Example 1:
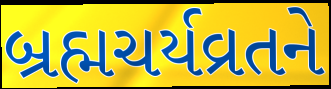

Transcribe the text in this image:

બ્રહ્મચર્યવ્રતને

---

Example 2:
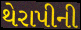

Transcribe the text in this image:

થેરાપીની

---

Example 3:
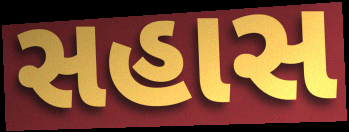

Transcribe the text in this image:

સહાસ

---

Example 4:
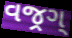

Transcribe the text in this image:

વજ્રગ્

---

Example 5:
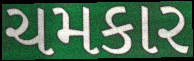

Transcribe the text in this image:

ચમકાર